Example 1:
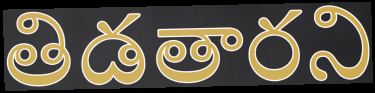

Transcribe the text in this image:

తిడతారని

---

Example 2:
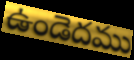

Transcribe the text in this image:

ఉండెదము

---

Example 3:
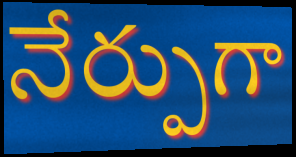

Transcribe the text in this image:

నేర్పుగా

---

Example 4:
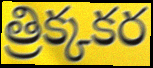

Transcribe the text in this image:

త్రిక్కకర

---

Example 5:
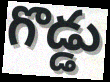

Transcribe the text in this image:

గొడ్డు